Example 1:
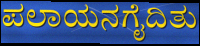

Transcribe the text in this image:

ಪಲಾಯನಗೈದಿತು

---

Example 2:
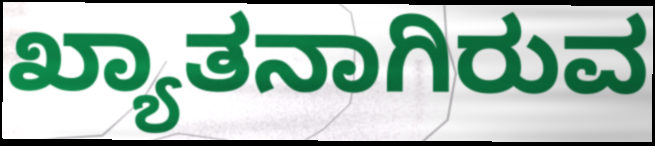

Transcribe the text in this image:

ಖ್ಯಾತನಾಗಿರುವ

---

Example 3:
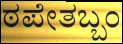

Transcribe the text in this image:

ಠಪೇತಬ್ಬಂ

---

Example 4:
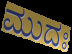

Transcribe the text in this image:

ಮುದಃ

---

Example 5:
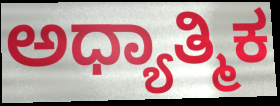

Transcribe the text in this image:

ಅಧ್ಯಾತ್ಮಿಕ